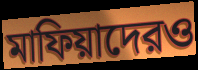
মাফিয়াদেরও